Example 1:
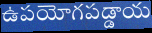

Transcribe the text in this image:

ఉపయోగపడ్డాయ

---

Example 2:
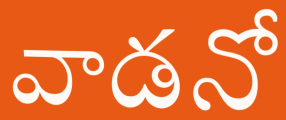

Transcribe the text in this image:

వాడనో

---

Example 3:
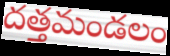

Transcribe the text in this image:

దత్తమండలం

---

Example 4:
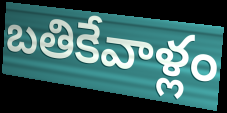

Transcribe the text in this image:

బతికేవాళ్లం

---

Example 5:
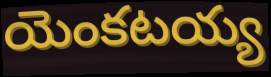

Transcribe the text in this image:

యెంకటయ్య